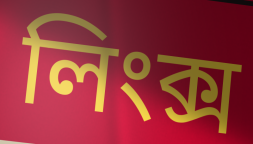
লিংক্স